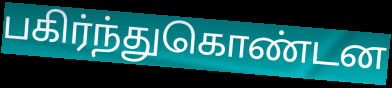
பகிர்ந்துகொண்டன